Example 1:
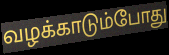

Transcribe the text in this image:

வழக்காடும்போது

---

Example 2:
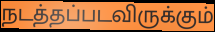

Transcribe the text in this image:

நடத்தப்படவிருக்கும்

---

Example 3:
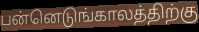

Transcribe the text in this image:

பன்னெடுங்காலத்திற்கு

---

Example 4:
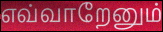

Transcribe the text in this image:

எவ்வாறேனும்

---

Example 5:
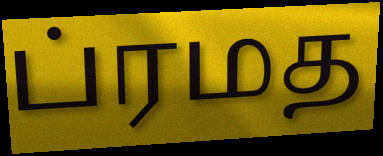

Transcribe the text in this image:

ப்ரமத